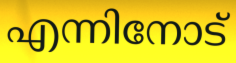
എന്നിനോട്